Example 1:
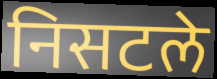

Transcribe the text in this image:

निसटले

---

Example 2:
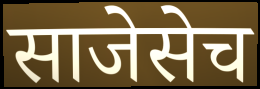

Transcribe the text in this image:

साजेसेच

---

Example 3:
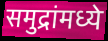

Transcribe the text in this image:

समुद्रांमध्ये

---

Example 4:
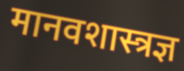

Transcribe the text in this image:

मानवशास्त्रज्ञ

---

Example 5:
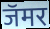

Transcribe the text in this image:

जॅमर